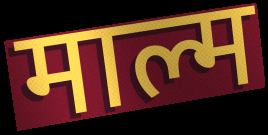
माल्म